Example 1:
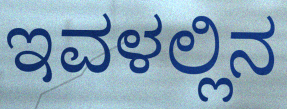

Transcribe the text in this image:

ಇವಳಲ್ಲಿನ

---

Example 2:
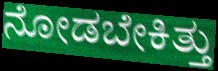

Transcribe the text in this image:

ನೋಡಬೇಕಿತ್ತು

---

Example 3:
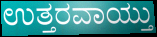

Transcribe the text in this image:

ಉತ್ತರವಾಯ್ತು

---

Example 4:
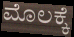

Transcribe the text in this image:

ಮೊಲಕ್ಕೆ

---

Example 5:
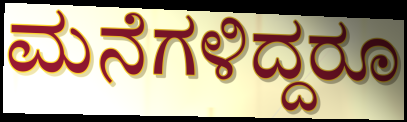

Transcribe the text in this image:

ಮನೆಗಳಿದ್ದರೂ